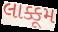
લાક્કૂમ